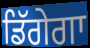
ਡਿੱਗੇਗਾ